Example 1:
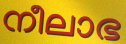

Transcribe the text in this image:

നീലാഭ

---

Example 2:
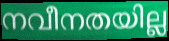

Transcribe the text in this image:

നവീനതയില്ല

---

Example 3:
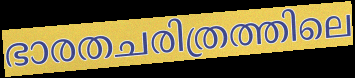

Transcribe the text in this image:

ഭാരതചരിത്രത്തിലെ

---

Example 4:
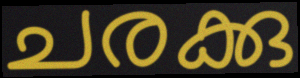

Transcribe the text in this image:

ചരക്കു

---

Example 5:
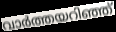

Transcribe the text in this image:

വാർത്തയറിഞ്ഞ്